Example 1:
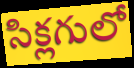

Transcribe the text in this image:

సిక్లగులో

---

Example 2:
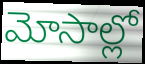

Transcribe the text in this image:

మోసాల్లో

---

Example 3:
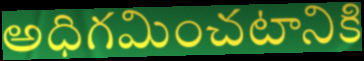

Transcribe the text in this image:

అధిగమించటానికి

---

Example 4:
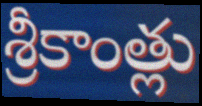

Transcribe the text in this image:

శ్రీకాంత్లు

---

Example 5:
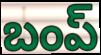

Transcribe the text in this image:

బంప్